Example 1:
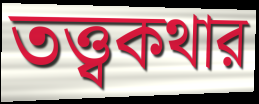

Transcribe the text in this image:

তত্ত্বকথার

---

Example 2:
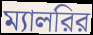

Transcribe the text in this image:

ম্যালরির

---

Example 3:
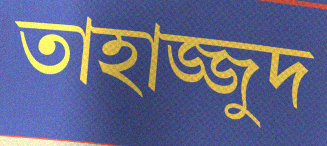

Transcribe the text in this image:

তাহাজ্জুদ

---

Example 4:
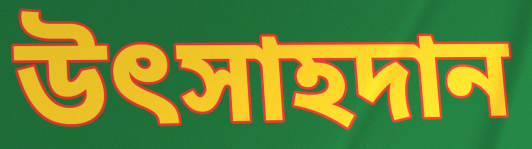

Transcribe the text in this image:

উৎসাহদান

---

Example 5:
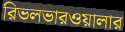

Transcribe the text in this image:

রিভলভারওয়ালার